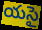
యసై